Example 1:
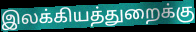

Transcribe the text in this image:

இலக்கியத்துறைக்கு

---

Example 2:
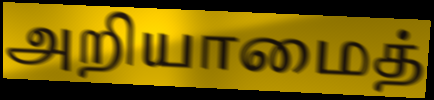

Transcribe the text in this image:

அறியாமைத்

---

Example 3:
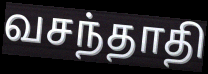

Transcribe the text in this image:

வசந்தாதி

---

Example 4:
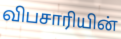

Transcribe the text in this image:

விபசாரியின்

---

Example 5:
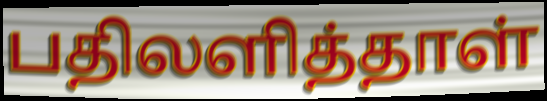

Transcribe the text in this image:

பதிலளித்தாள்